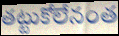
తట్టుకోలేనంత